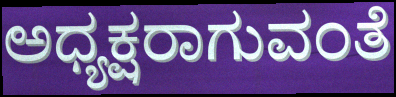
ಅಧ್ಯಕ್ಷರಾಗುವಂತೆ